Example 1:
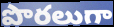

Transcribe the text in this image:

పొరలుగా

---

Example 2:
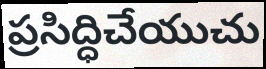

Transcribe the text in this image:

ప్రసిద్ధిచేయుచు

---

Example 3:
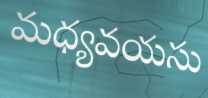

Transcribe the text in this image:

మధ్యవయసు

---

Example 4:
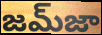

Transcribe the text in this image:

జమ్‌జా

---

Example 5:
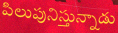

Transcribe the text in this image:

పిలుపునిస్తున్నాడు